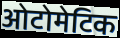
ओटोमेटिक